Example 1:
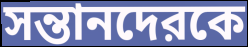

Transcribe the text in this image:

সন্তানদেরকে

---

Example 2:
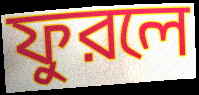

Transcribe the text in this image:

ফুরলে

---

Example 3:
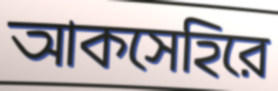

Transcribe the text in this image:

আকসেহিরে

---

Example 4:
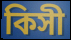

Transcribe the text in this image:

কিসী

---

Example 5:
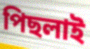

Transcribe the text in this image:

পিছলাই